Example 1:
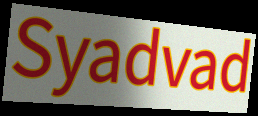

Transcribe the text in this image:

Syadvad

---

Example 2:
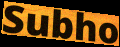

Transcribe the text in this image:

Subho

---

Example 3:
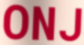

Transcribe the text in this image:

ONJ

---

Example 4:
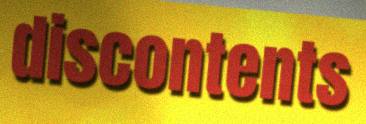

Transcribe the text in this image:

discontents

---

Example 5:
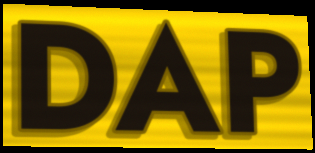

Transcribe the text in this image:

DAP